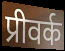
प्रीवर्क